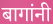
बागांनी